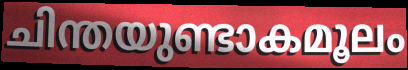
ചിന്തയുണ്ടാകമൂലം